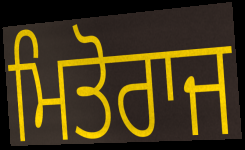
ਮਿਤੋਰਾਜ